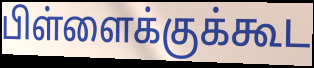
பிள்ளைக்குக்கூட